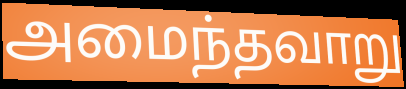
அமைந்தவாறு